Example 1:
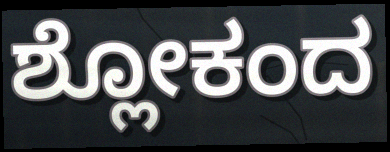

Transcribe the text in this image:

ಶ್ಲೋಕಂದ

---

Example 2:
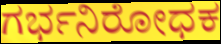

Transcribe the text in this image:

ಗರ್ಭನಿರೋಧಕ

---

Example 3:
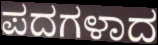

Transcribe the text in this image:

ಪದಗಳಾದ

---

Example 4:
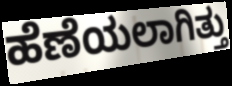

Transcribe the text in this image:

ಹೆಣೆಯಲಾಗಿತ್ತು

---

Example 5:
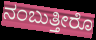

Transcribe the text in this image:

ನಂಬುತ್ತೀರೊ